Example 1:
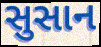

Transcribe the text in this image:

સુસાન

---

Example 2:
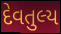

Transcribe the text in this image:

દેવતુલ્ય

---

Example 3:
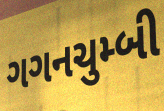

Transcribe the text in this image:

ગગનચુમ્બી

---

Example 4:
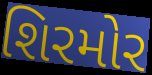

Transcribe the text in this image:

શિરમોર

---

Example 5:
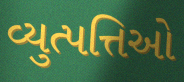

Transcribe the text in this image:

વ્યુત્પત્તિઓ